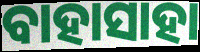
ବାହାସାହା